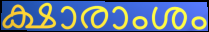
ക്ഷാരാംശം